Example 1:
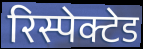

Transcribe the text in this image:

रिस्पेक्टेड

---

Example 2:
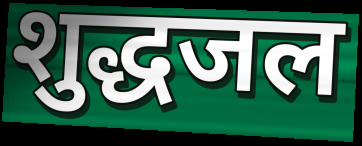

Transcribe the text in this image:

शुद्धजल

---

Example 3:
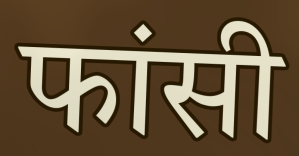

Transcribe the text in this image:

फांसी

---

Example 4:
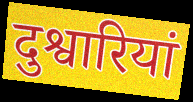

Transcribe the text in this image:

दुश्वारियां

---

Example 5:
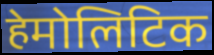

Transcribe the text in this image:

हेमोलिटिक